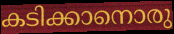
കടിക്കാനൊരു